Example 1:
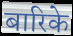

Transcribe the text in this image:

बारिके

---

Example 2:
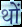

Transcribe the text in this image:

थों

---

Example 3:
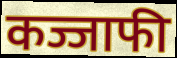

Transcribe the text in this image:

कज्जाफी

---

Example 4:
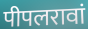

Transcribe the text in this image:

पीपलरावां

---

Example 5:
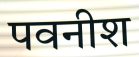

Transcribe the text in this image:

पवनीश